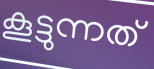
കൂട്ടുന്നത്